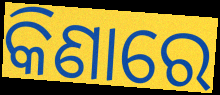
କିଣାରେ